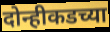
दोन्हीकडच्या